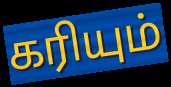
கரியும்